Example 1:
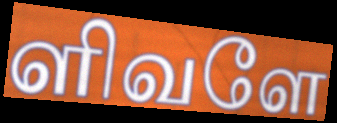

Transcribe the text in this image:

ளிவளே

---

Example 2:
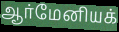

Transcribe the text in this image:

ஆர்மேனியக்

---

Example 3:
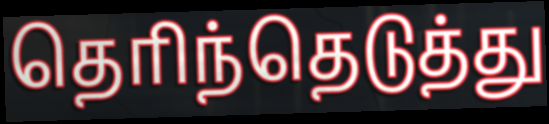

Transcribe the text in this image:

தெரிந்தெடுத்து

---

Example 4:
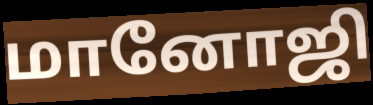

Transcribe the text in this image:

மானோஜி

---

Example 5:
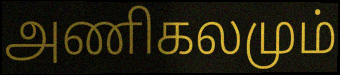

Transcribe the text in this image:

அணிகலமும்